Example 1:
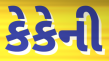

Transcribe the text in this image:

કેકેની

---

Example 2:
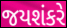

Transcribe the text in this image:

જયશંકરે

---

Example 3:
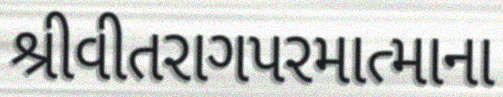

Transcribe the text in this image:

શ્રીવીતરાગપરમાત્માના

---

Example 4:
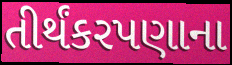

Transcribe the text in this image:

તીર્થંકરપણાના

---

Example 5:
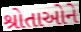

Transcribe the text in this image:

શ્રોતાઓને